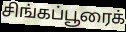
சிங்கப்பூரைக்